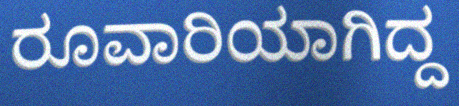
ರೂವಾರಿಯಾಗಿದ್ದ